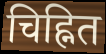
चिह्नित